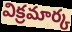
విక్రమార్క